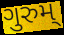
ગુરુમ્